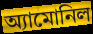
অ্যামোনিল